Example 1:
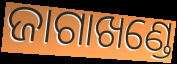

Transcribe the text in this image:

ଜାଗାଖଣ୍ଡେ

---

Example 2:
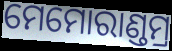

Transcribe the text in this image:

ମେମୋରାଣ୍ଡମ୍ର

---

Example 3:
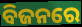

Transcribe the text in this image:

ବିଜନରେ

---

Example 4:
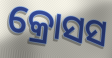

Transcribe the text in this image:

କ୍ରୋସସ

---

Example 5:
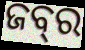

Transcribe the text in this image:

ଜବ୍‍ର